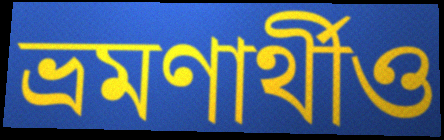
ভ্রমণার্থীও